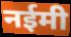
नईमी